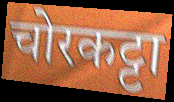
चोरकट्टा